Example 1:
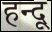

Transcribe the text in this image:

हन्दू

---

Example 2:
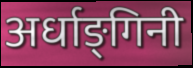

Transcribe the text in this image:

अर्धाङ्गिनी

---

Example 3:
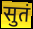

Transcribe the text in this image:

सुतं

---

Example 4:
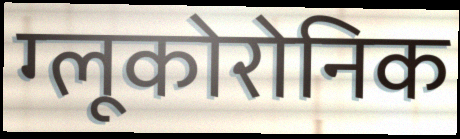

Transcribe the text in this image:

ग्लूकोरोनिक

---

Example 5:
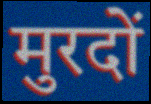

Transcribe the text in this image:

मुरदों